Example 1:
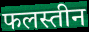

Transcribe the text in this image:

फलस्तीन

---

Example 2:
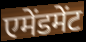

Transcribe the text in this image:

एमेंडमेंट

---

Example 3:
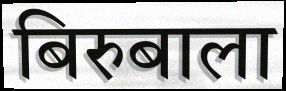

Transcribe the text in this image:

बिरुबाला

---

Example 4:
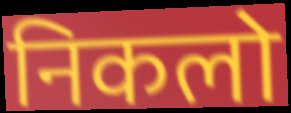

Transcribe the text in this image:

निकलो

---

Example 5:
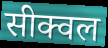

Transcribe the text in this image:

सीक्वल